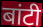
बांटी